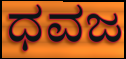
ಧವಜ